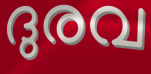
ദുരവ